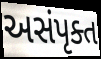
અસંપૃક્ત